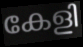
കേളി